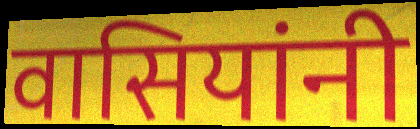
वासियांनी